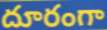
దూరంగా